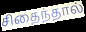
சிதைந்தால்